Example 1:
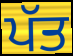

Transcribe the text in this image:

ਪੱਤ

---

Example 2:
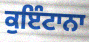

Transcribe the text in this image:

ਕੁਇੰਟਾਨਾ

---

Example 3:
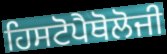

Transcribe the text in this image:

ਹਿਸਟੋਪੈਥੋਲੋਜੀ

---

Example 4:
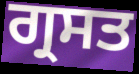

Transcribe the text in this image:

ਗ੍ਰਸਤ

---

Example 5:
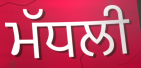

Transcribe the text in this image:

ਮੱਧਲੀ